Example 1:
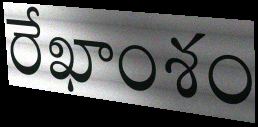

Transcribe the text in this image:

రేఖాంశం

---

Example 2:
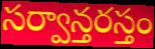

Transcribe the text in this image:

సర్వాన్తరస్తం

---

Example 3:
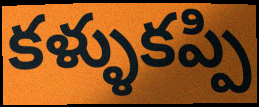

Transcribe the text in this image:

కళ్ళుకప్పి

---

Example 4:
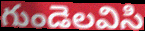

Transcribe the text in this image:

గుండెలవిసి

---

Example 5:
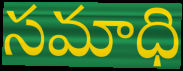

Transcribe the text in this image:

సమాధి